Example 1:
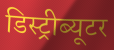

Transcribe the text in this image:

डिस्ट्रीब्यूटर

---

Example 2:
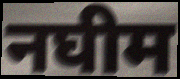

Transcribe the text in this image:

नघीम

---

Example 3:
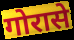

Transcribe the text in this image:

गोरासे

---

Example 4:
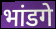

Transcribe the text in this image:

भांडगे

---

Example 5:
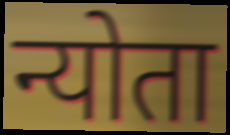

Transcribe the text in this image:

न्योता